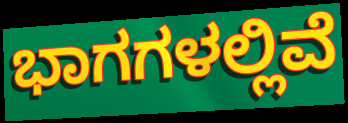
ಭಾಗಗಳಲ್ಲಿವೆ